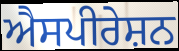
ਐਸਪੀਰੇਸ਼ਨ